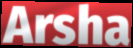
Arsha